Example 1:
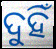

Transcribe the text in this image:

ଦୁହିଁ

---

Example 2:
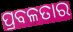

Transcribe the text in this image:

ପ୍ରବଳତାର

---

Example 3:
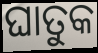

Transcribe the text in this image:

ଘାତୁକ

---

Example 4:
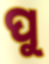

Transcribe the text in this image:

ପୁ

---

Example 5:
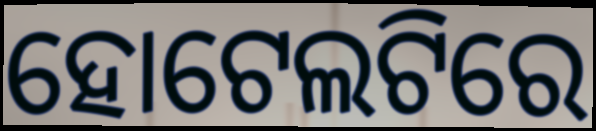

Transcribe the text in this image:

ହୋଟେଲଟିରେ